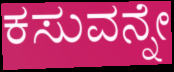
ಕಸುವನ್ನೇ